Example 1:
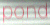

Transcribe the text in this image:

pond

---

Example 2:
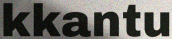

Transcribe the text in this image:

kkantu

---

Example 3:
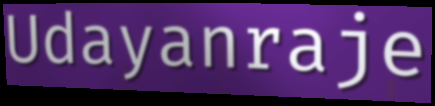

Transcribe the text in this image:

Udayanraje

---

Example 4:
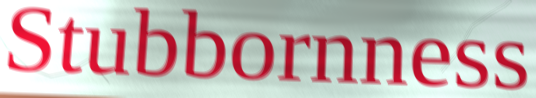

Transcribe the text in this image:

Stubbornness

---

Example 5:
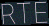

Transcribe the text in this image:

RTE